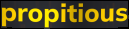
propitious